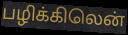
பழிக்கிலென்